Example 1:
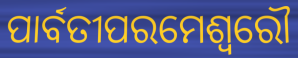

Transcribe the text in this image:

ପାର୍ବତୀପରମେଶ୍ଵରୌ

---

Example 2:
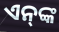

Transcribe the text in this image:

ଏନ୍‌ଙ୍କ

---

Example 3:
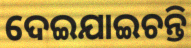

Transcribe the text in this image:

ଦେଇଯାଇଚନ୍ତି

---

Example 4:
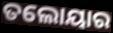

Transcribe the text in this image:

ତଲୋୟାର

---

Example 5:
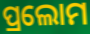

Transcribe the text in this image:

ପ୍ରଲୋମ